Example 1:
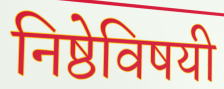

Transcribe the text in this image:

निष्ठेविषयी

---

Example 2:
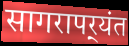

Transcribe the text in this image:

सागरापर्यंत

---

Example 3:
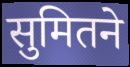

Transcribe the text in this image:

सुमितने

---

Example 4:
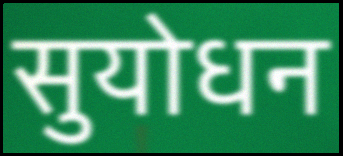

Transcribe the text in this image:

सुयोधन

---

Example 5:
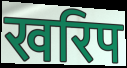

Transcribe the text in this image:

खरिप